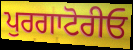
ਪੁਰਗਾਟੋਰੀਓ